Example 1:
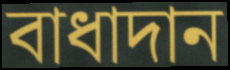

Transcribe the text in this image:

বাধাদান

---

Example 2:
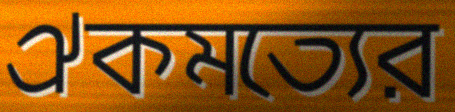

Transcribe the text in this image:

ঐকমত্যের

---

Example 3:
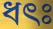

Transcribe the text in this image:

ধৎঃ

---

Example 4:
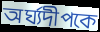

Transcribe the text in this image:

অর্ঘ্যদীপকে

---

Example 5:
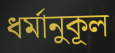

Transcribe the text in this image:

ধর্মানুকূল